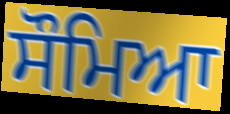
ਸੌਮਿਆ